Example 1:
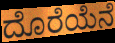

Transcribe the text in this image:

ದೊರೆಯೆನೆ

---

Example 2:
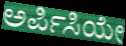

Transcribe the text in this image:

ಅರ್ಪಿಸಿಯೇ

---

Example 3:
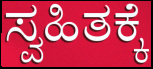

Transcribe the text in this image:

ಸ್ವಹಿತಕ್ಕೆ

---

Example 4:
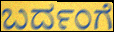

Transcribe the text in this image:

ಬರ್ದಂಗೆ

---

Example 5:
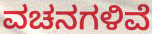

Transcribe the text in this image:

ವಚನಗಳಿವೆ